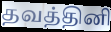
தவத்தினி